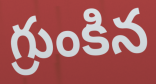
గ్రుంకిన